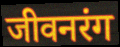
जीवनरंग